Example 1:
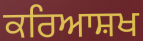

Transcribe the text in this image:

ਕਰਿਆਸ਼ਖ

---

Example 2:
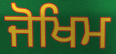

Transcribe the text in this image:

ਜੋਖਿਮ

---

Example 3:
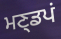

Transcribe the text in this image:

ਮਣ੍ਡਪਂ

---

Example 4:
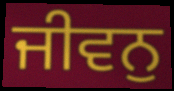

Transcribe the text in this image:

ਜੀਵਨੁ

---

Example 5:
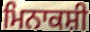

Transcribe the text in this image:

ਮਿਨਾਕਸ਼ੀ